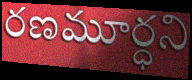
రణమూర్ధని